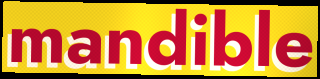
mandible